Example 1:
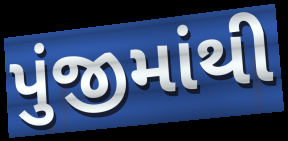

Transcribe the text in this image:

પુંજીમાંથી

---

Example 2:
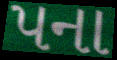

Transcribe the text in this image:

પના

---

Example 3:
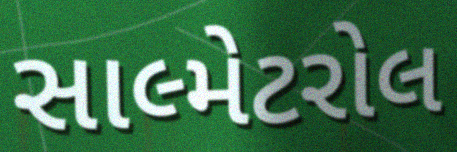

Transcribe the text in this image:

સાલ્મેટરોલ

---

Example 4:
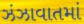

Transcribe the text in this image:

ઝંઝાવાતમાં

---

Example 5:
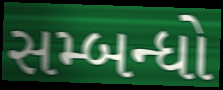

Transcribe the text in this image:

સમ્બન્ધો